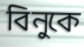
বিনুকে